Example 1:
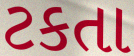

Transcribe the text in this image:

ટકતા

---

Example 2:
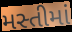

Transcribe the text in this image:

મસ્તીમાં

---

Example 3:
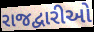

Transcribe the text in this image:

રાજદ્વારીઓ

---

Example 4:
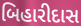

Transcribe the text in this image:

બિહારીદાસ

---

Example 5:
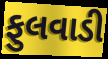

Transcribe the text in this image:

ફુલવાડી